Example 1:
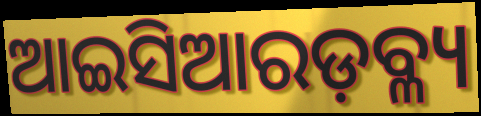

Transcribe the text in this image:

ଆଇସିଆରଡ଼ବ୍ଳ୍ୟ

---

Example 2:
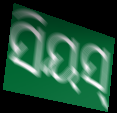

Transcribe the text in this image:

ସିୟସ୍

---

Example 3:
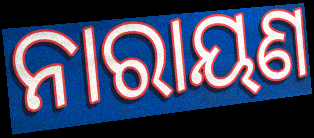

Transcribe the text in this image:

ନାରାୟଣ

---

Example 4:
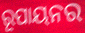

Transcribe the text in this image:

ରୂପାୟନର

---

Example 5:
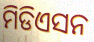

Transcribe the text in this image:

ମିଡିଏସନ